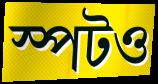
স্পটও